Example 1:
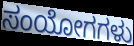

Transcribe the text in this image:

ಸಂಯೋಗಗಳು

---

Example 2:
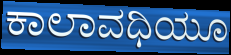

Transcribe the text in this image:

ಕಾಲಾವಧಿಯೂ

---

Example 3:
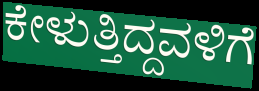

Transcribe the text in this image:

ಕೇಳುತ್ತಿದ್ದವಳಿಗೆ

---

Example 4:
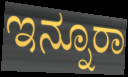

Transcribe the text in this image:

ಇನ್ನೂರಾ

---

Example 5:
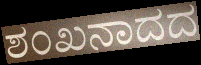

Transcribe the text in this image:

ಶಂಖನಾದದ